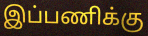
இப்பணிக்கு